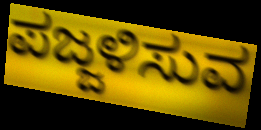
ಪಜ್ಜಳಿಸುವ